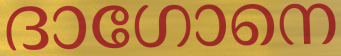
ദാഗോനെ